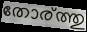
തോര്ത്തു